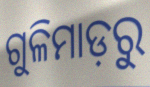
ଗୁଳିମାଡ଼ରୁ